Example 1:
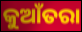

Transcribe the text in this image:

କୁଆଁତରା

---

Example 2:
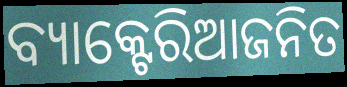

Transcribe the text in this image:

ବ୍ୟାକ୍ଟେରିଆଜନିତ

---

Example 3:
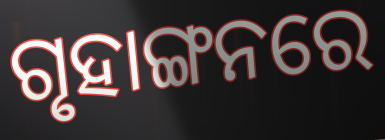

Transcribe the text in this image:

ଗୃହାଙ୍ଗନରେ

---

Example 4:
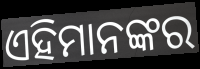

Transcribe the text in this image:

ଏହିମାନଙ୍କର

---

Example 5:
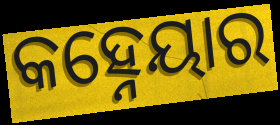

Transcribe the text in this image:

କହ୍ନେୟାର